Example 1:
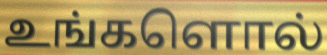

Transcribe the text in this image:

உங்களொல்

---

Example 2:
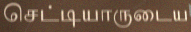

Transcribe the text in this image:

செட்டியாருடைய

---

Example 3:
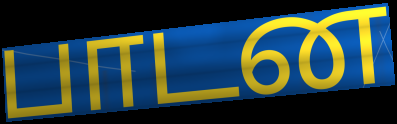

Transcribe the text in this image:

பாடன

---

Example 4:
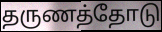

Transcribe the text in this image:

தருணத்தோடு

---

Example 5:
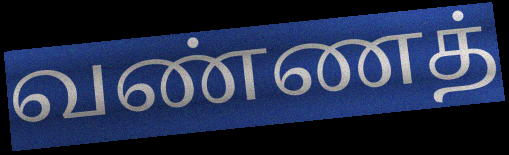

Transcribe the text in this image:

வண்ணத்